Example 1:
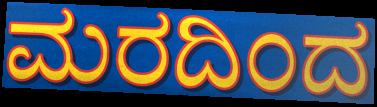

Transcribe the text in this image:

ಮರದಿಂದ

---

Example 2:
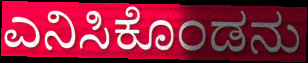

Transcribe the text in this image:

ಎನಿಸಿಕೊಂಡನು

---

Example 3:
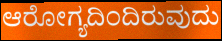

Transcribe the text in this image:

ಆರೋಗ್ಯದಿಂದಿರುವುದು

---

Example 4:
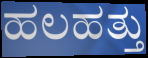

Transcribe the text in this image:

ಹಲಹತ್ತು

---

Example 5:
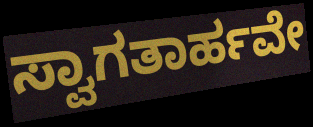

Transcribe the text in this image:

ಸ್ವಾಗತಾರ್ಹವೇ